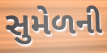
સુમેળની